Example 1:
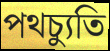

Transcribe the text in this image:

পথচ্যুতি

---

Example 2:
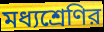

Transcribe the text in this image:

মধ্যশ্রেণির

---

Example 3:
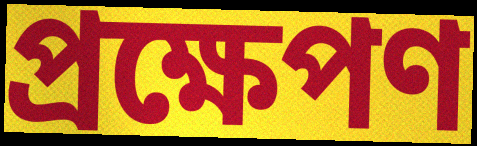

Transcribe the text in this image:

প্রক্ষেপণ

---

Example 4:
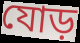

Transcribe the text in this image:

যোড়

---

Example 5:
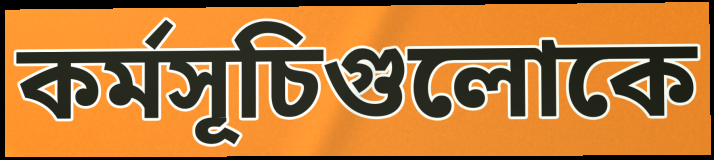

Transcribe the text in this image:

কর্মসূচিগুলোকে